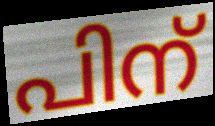
പിന്